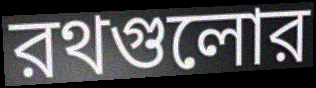
রথগুলোর